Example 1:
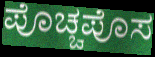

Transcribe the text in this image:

ಪೊಚ್ಚಪೊಸ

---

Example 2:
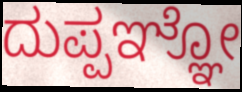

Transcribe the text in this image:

ದುಪ್ಪಞ್ಞೋ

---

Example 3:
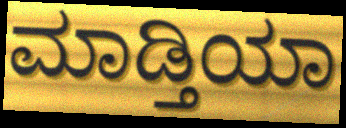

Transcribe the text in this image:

ಮಾಡ್ತಿಯಾ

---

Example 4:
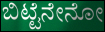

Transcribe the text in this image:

ಬಿಟ್ಟೆನೇನೋ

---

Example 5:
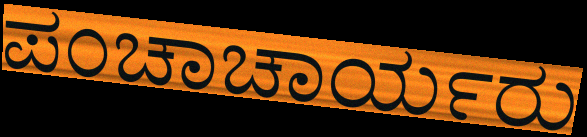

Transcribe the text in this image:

ಪಂಚಾಚಾರ್ಯರು